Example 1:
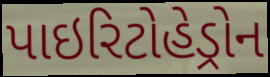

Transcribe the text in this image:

પાઇરિટોહેડ્રોન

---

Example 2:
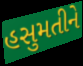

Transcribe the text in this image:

હસુમતીને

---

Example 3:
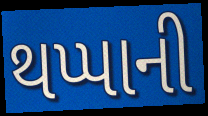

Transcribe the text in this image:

થપ્પાની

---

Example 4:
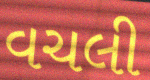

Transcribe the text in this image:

વચલી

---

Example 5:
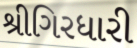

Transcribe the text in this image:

શ્રીગિરધારી